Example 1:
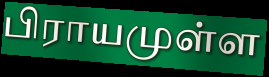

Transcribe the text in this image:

பிராயமுள்ள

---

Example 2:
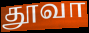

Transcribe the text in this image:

தூவா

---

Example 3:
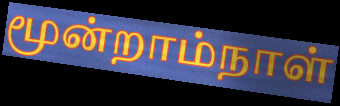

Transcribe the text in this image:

மூன்றாம்நாள்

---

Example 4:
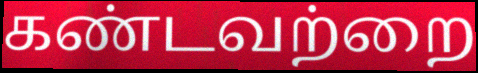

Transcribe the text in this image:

கண்டவற்றை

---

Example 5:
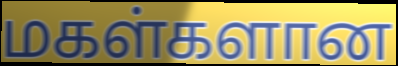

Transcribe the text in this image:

மகள்களான